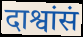
दाश्वांसं